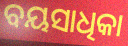
ବୟସାଧିକା